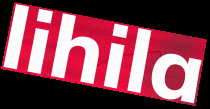
lihila